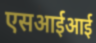
एसआईआई